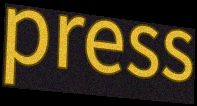
press